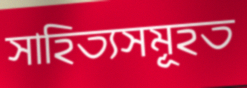
সাহিত্যসমূহত